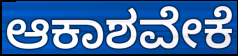
ಆಕಾಶವೇಕೆ